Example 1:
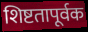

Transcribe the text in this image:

शिष्टतापूर्वक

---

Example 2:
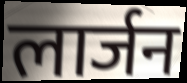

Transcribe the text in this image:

लार्जन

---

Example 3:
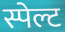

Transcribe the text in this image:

स्पेल्ट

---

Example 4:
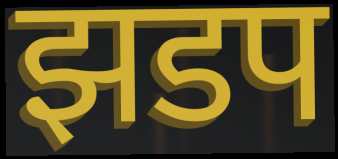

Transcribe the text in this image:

झडप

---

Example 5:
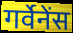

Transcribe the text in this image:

गर्वेनेंस